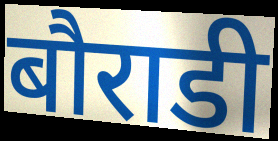
बौराडी